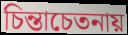
চিন্তাচেতনায়